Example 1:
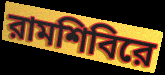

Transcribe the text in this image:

রামশিবিরে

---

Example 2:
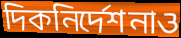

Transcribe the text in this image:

দিকনির্দেশনাও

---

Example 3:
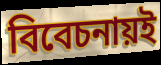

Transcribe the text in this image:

বিবেচনায়ই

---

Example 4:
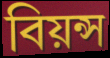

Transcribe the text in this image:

বিয়ন্স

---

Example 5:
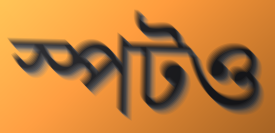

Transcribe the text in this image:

স্পটও